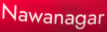
Nawanagar